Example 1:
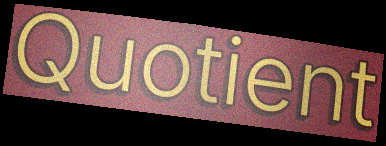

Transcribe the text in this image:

Quotient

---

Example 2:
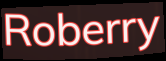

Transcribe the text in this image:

Roberry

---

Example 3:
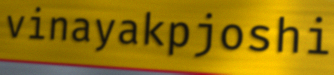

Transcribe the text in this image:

vinayakpjoshi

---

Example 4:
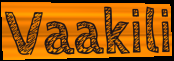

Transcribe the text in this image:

Vaakili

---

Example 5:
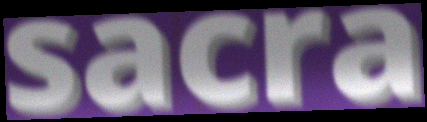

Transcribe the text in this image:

sacra